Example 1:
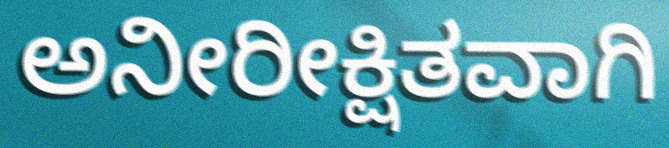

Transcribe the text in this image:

ಅನೀರೀಕ್ಷಿತವಾಗಿ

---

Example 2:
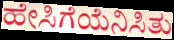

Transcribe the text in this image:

ಹೇಸಿಗೆಯೆನಿಸಿತು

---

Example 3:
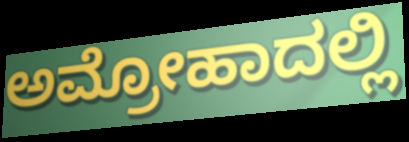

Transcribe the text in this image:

ಅಮ್ರೋಹಾದಲ್ಲಿ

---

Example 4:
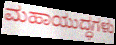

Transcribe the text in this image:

ಮಹಾಯುದ್ಧಗಳು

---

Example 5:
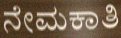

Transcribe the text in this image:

ನೇಮಕಾತಿ